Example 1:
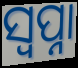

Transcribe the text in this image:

ସ୍ୱପ୍ନା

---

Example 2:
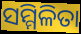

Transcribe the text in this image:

ସମ୍ମିଳିତା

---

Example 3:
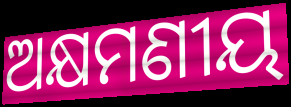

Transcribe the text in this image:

ଅକ୍ଷମଣୀୟ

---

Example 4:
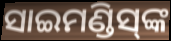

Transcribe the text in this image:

ସାଇମଣ୍ଡିସ୍‍ଙ୍କ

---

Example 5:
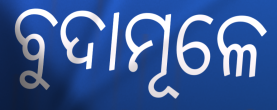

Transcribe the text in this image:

ବୁଦାମୂଳେ